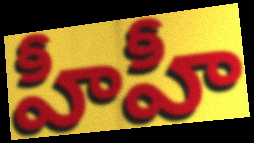
హీహీ